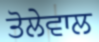
ਤੋਲੇਵਾਲ